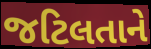
જટિલતાને